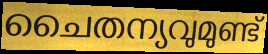
ചൈതന്യവുമുണ്ട്